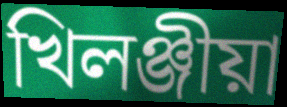
খিলঞ্জীয়া